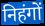
निहंगों